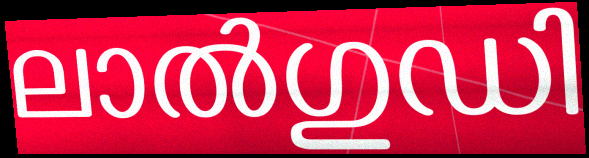
ലാൽഗുഡി